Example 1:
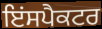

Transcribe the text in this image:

ਇਂਸਪੈਕਟਰ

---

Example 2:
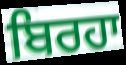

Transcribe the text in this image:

ਬਿਰਹਾ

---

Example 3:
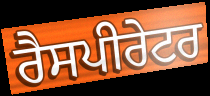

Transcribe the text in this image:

ਰੈਸਪੀਰੇਟਰ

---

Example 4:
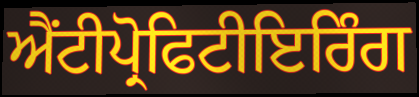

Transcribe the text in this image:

ਐਂਟੀਪ੍ਰੋਫਿਟੀਇਰਿੰਗ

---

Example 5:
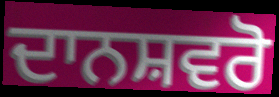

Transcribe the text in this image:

ਦਾਨਸ਼ਵਰੋ